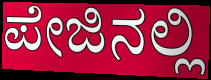
ಪೇಜಿನಲ್ಲಿ